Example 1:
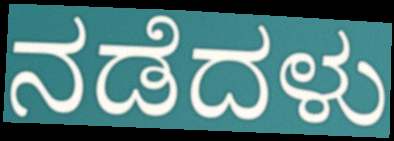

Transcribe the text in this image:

ನಡೆದಳು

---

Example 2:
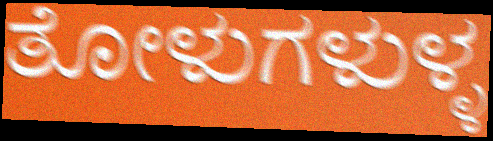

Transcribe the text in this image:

ತೋಳುಗಳುಳ್ಳ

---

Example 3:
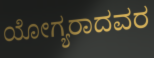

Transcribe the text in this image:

ಯೋಗ್ಯರಾದವರ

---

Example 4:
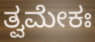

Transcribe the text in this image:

ತ್ವಮೇಕಃ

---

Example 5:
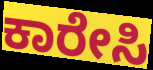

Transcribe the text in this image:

ಕಾರೇಸಿ